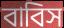
বাবিস